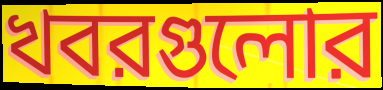
খবরগুলোর